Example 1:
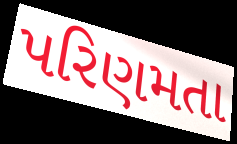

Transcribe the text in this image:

પરિણમતા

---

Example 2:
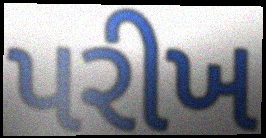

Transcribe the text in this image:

પરીખ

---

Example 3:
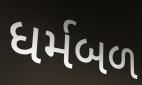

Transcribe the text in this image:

ધર્મબળ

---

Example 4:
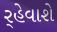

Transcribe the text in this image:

ર્‌હેવાશે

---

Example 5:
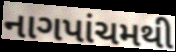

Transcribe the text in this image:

નાગપાંચમથી